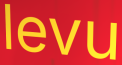
levu